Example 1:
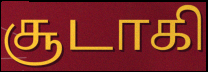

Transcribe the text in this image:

சூடாகி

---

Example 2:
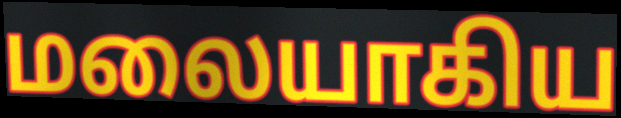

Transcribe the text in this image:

மலையாகிய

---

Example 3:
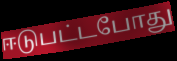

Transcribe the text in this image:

ஈடுபட்டபோது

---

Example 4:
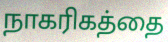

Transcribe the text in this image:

நாகரிகத்தை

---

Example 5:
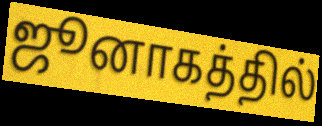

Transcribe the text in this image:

ஜூனாகத்தில்